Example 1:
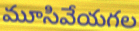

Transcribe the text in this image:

మూసివేయగల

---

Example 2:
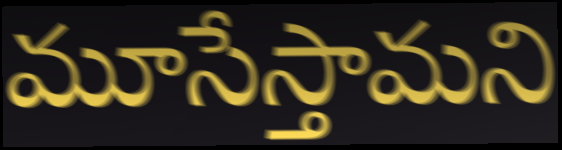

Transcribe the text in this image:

మూసేస్తామని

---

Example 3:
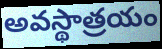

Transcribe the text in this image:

అవస్థాత్రయం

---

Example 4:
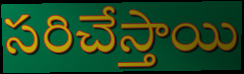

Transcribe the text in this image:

సరిచేస్తాయి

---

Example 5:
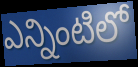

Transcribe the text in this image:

ఎన్నింటిలో